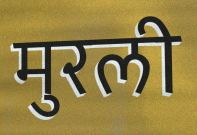
मुरली